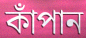
কাঁপান